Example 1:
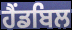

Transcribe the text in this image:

ਹੈਂਡਬਿਲ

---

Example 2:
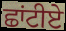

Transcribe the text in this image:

ਛਾਂਟੀਏ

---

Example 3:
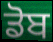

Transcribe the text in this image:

ਡੋਬ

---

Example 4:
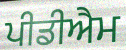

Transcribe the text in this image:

ਪੀਡੀਐਮ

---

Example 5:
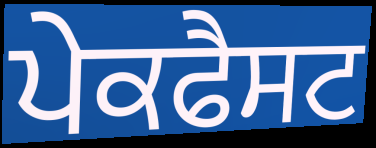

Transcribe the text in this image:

ਪੇਕਫੈਸਟ